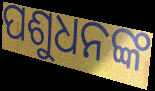
ପଶୁଧନଙ୍କ